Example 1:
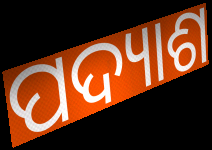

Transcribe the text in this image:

ପଦ୍ୟାଶ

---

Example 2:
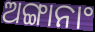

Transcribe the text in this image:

ଅଙ୍ଗାନାଂ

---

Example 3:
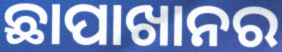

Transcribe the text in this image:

ଛାପାଖାନର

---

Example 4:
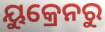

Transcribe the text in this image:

ୟୁକ୍ରେନରୁ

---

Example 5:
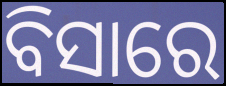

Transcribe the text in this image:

ବିସାରେ